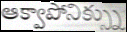
ఆక్వాపోనిక్స్ను